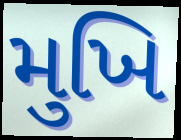
મુખિ